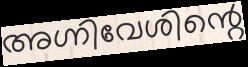
അഗ്നിവേശിന്റെ